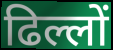
ढिल्लों